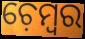
ଚ଼େମ୍ୱର